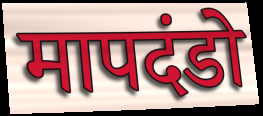
मापदंडो